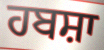
ਹਬਸ਼ਾ